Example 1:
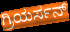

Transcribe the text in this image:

ಗ್ರಿಯರ್ಸನ್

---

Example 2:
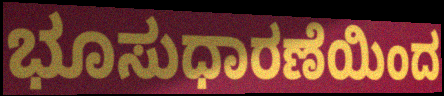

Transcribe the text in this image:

ಭೂಸುಧಾರಣೆಯಿಂದ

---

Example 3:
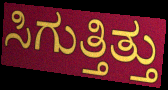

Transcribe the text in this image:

ಸಿಗುತ್ತಿತ್ತು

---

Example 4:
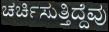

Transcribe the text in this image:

ಚರ್ಚಿಸುತ್ತಿದ್ದೆವು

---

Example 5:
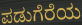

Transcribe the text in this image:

ಪಡುಗೆರೆಯ